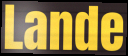
Lande